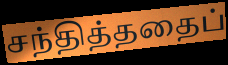
சந்தித்ததைப்